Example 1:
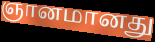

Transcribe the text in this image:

ஞானமானது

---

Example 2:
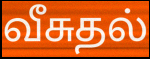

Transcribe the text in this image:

வீசுதல்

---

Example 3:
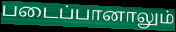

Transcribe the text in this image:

படைப்பானாலும்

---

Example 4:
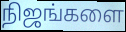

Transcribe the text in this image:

நிஜங்களை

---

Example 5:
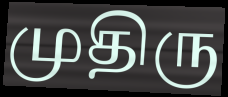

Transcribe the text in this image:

முதிரு